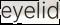
eyelid